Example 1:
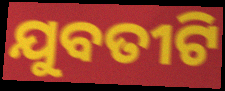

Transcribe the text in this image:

ଯୁବତୀଟି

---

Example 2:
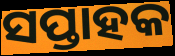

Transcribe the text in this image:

ସପ୍ତାହକ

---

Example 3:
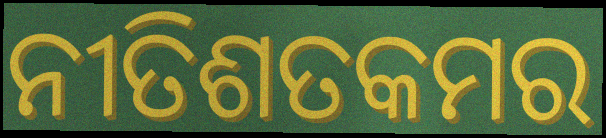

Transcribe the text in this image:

ନୀତିଶତକମର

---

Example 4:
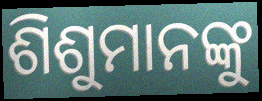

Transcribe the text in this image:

ଶିଶୁମାନଙ୍କୁ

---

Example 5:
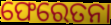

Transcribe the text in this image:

ଫେରେତନା